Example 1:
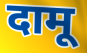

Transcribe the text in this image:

दामू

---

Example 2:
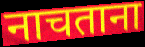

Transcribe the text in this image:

नाचताना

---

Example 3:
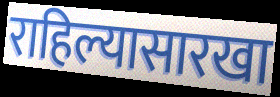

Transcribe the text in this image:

राहिल्यासारखा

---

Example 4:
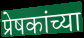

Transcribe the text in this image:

प्रेषकांच्या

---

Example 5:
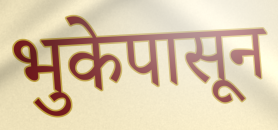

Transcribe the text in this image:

भुकेपासून